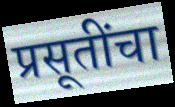
प्रसूतींचा